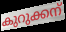
കുറുക്കന്